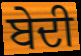
ਬੇਦੀ